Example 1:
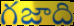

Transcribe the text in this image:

గజాది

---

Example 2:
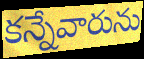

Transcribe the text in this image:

కన్నేవారును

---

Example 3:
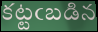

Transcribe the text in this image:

కట్టఁబడిన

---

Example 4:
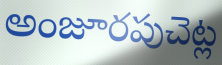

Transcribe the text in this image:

అంజూరపుచెట్ల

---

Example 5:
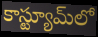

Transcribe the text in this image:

కాస్ట్యూమ్‌లో